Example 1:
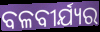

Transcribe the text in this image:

ବଳବୀର୍ଯ୍ୟର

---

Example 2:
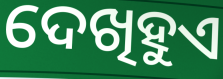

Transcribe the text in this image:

ଦେଖିହୁଏ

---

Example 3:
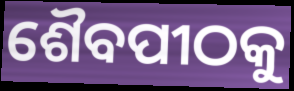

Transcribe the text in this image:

ଶୈବପୀଠକୁ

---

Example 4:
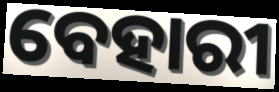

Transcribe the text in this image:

ବେହାରୀ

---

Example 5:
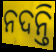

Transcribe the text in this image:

ନଦନ୍ତି